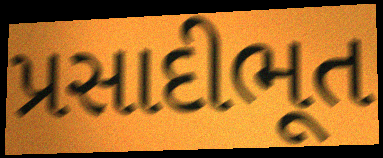
પ્રસાદીભૂત